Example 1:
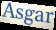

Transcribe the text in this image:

Asgar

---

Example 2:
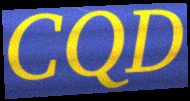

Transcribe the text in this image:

CQD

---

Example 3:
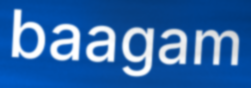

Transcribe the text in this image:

baagam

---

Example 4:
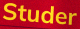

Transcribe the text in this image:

Studer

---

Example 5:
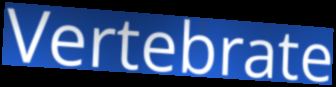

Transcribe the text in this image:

Vertebrate